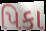
પિકા